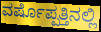
ವರ್ಷೊಪ್ಪತ್ತಿನಲ್ಲಿ